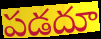
పడదూ